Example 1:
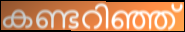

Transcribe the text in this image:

കണ്ടറിഞ്ഞ്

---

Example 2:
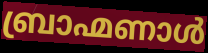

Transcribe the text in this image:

ബ്രാഹ്മണാൾ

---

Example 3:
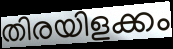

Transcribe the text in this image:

തിരയിളക്കം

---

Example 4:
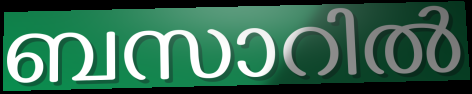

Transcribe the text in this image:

ബസാറിൽ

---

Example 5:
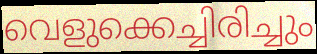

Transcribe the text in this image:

വെളുക്കെച്ചിരിച്ചും